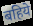
बहिये